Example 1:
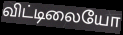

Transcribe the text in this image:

விட்டிலையோ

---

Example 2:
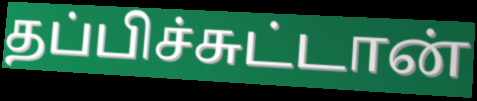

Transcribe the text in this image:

தப்பிச்சுட்டான்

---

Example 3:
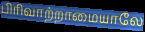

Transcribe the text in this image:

பிரிவாற்றாமையாலே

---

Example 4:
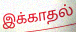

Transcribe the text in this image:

இக்காதல்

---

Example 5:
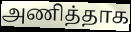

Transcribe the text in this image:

அணித்தாக